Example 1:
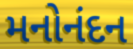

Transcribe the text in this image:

મનોનંદન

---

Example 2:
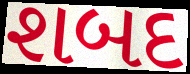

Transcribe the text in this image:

શબદ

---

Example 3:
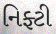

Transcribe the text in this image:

નિફ્ટી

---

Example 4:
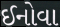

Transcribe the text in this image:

ઈનોવા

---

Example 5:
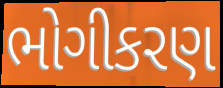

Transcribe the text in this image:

ભોગીકરણ